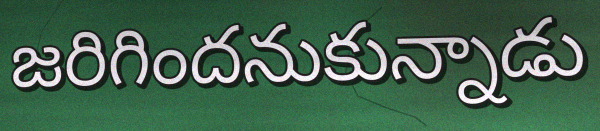
జరిగిందనుకున్నాడు